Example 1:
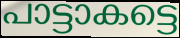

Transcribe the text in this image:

പാട്ടാകട്ടെ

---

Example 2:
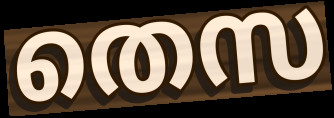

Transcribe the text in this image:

തെസ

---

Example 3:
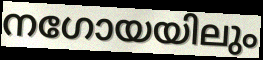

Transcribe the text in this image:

നഗോയയിലും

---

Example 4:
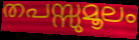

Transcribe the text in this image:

തപസ്സുമൂലം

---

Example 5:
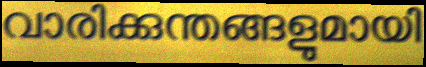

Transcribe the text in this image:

വാരിക്കുന്തങ്ങളുമായി